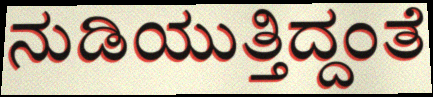
ನುಡಿಯುತ್ತಿದ್ದಂತೆ